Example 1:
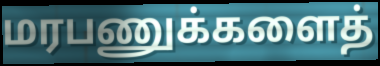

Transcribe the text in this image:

மரபணுக்களைத்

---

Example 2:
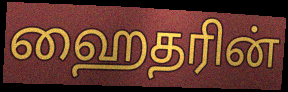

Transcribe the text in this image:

ஹைதரின்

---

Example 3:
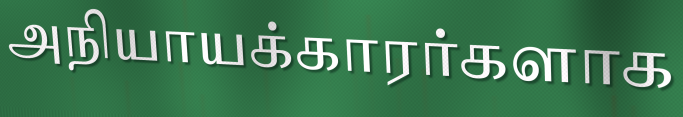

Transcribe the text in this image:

அநியாயக்காரர்களாக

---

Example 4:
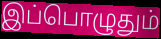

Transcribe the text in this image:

இப்பொழுதும்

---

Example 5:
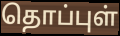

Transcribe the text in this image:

தொப்புள்